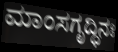
ಮಾಂಸಗೃದ್ಧಿನಃ